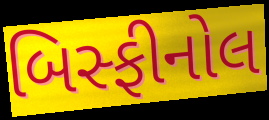
બિસ્ફીનોલ